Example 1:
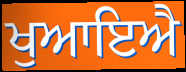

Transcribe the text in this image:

ਖੁਆਇਐ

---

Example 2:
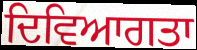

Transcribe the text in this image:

ਦਿਵਿਆਗਤਾ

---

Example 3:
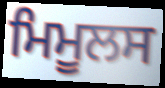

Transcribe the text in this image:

ਮਿਮੂਲਸ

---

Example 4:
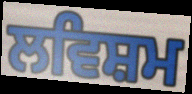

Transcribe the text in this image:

ਲਵਿਸ਼ਮ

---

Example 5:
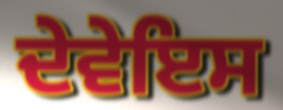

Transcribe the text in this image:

ਦੇਵੇਇਸ